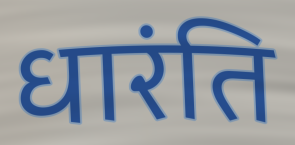
धारंति